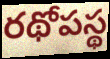
రథోపస్థ